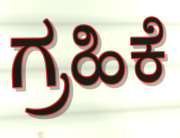
ಗ್ರಹಿಕೆ